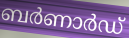
ബർണാർഡ്